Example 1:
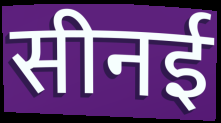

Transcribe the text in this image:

सीनई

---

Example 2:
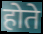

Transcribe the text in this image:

होते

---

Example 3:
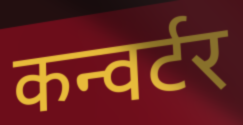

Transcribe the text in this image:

कन्वर्टर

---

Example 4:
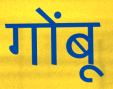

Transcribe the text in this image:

गोंबू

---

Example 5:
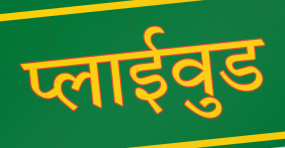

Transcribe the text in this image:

प्लाईवुड